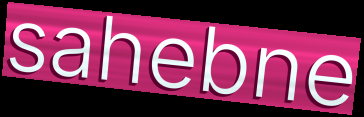
sahebne